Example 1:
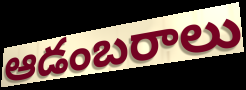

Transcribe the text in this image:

ఆడంబరాలు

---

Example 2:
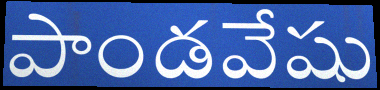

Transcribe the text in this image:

పాండవేషు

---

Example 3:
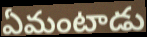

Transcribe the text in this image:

ఏమంటాడు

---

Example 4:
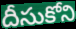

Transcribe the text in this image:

దీసుకోని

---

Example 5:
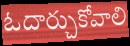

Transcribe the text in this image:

ఓదార్చుకోవాలి